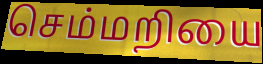
செம்மறியை